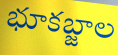
భూకబ్జాల